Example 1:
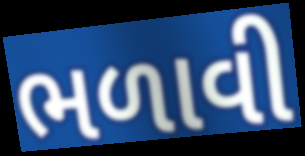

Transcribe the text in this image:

ભળાવી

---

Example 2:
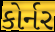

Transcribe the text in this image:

કોર્નર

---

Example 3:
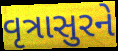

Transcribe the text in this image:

વૃત્રાસુરને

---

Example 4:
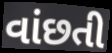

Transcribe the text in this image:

વાંછતી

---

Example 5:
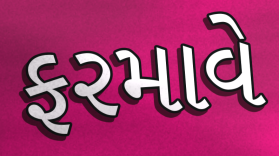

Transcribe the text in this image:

ફરમાવે